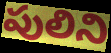
పులిని